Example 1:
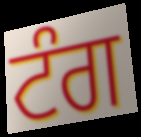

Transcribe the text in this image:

ਟੰਗ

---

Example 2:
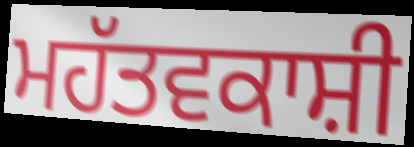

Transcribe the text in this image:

ਮਹੱਤਵਕਾਸ਼ੀ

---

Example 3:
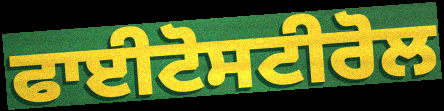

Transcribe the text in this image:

ਫਾਈਟੋਸਟੀਰੋਲ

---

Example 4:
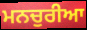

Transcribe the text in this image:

ਮਨਚੁਰੀਆ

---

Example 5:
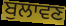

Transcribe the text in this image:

ਬੁਲਾਵਣ